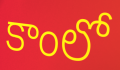
కాంలో